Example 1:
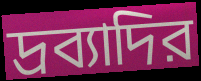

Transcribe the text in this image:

দ্রব্যাদির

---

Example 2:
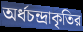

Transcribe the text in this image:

অর্ধচন্দ্রাকৃতির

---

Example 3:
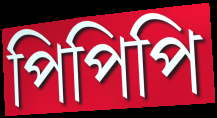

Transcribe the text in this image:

পিপিপি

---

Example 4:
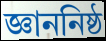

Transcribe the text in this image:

জ্ঞাননিষ্ঠ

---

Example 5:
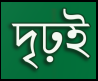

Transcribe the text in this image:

দৃঢ়ই